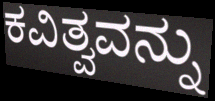
ಕವಿತ್ವವನ್ನು